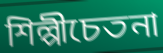
শিল্পীচেতনা